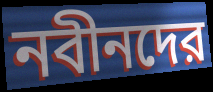
নবীনদের